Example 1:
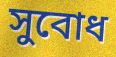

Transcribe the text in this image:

সুবোধ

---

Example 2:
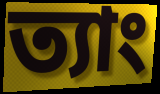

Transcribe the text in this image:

ত্যাং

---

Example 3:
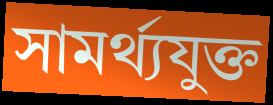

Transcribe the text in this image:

সামর্থ্যযুক্ত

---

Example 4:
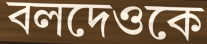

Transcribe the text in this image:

বলদেওকে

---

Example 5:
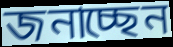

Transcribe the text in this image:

জনাচ্ছেন